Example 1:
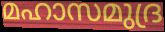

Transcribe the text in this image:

മഹാസമുദ്ര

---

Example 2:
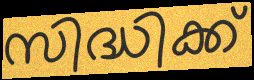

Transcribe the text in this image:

സിദ്ധിക്ക്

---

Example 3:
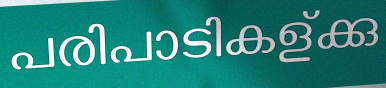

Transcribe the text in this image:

പരിപാടികള്ക്കു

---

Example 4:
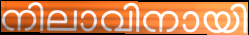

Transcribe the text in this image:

നിലാവിനായി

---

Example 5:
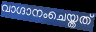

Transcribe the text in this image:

വാഗ്ദാനംചെയ്തത്